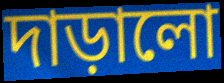
দাড়ালো